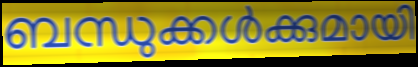
ബന്ധുക്കൾക്കുമായി